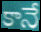
కానే